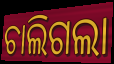
ଚାଲିଗଲା